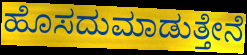
ಹೊಸದುಮಾಡುತ್ತೇನೆ